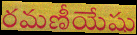
రమణీయేషు